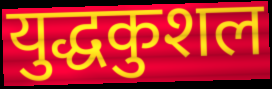
युद्धकुशल